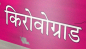
किरोवोग्राड